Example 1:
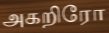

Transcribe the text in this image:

அகறிரோ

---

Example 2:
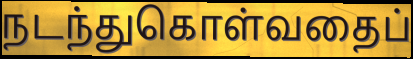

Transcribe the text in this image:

நடந்துகொள்வதைப்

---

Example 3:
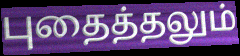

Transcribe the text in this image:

புதைத்தலும்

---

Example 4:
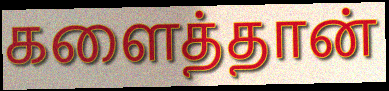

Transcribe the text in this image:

களைத்தான்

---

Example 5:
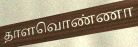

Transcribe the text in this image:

தாளவொண்ணா